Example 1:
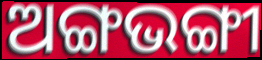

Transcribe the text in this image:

ଅଙ୍ଗଭଙ୍ଗୀ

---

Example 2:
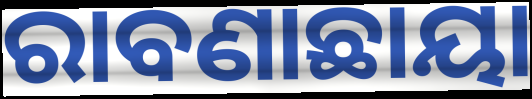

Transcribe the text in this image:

ରାବଣାଛାୟା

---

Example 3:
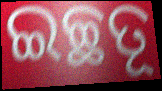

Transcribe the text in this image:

ଇଚ୍ଛତୂ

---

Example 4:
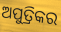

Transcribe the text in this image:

ଅପୁତ୍ରିକର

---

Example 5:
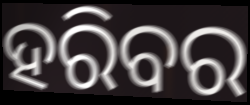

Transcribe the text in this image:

ହରିବର